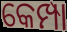
କେମ୍ପା